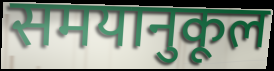
समयानुकूल